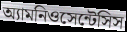
অ্যামনিওসেন্টেসিস